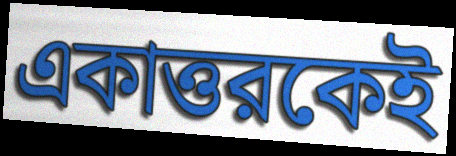
একাত্তরকেই